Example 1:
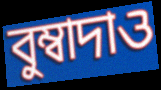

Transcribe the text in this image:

বুম্বাদাও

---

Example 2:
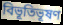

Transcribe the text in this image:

বিভূতিভূষণ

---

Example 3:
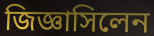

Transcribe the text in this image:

জিজ্ঞাসিলেন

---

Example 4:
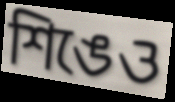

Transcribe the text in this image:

শিঙেও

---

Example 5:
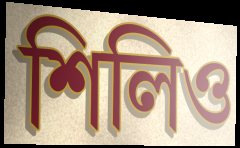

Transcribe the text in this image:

শিলিও